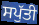
ਸਪੁੱਤੀ